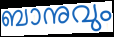
ബാനുവും